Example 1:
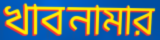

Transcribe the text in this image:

খাবনামার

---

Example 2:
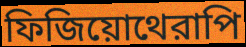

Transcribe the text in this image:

ফিজিয়োথেরাপি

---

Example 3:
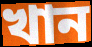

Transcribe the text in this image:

খান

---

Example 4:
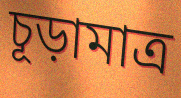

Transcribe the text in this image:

চূড়ামাত্র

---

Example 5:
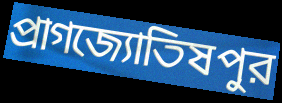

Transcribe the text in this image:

প্রাগজ্যোতিষপুর